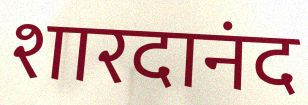
शारदानंद